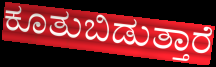
ಕೂತುಬಿಡುತ್ತಾರೆ